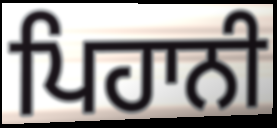
ਪਿਹਾਨੀ